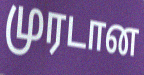
முரடான